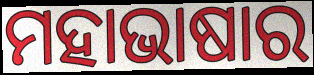
ମହାଭାଷାର